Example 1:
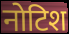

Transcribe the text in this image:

नोटिश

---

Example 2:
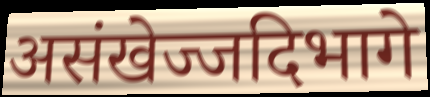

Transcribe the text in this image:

असंखेज्जदिभागे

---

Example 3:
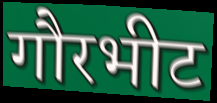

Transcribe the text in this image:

गौरभीट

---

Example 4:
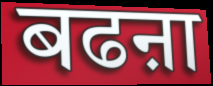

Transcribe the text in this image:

बढऩा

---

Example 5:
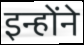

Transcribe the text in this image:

इन्‍होंने